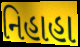
નિહાહા